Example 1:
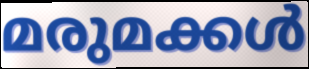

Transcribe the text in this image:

മരുമക്കൾ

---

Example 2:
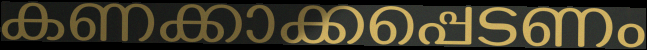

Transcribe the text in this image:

കണക്കാക്കപ്പെടണം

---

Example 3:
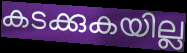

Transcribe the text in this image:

കടക്കുകയില്ല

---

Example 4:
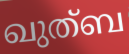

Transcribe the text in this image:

ഖുത്ബ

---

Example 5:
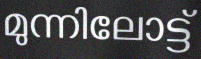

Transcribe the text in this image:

മുന്നിലോട്ട്